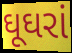
ઘૂઘરાં